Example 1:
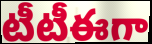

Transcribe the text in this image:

టీటీఈగా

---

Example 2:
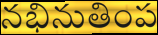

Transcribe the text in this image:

నభినుతింప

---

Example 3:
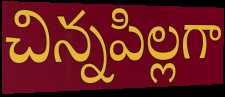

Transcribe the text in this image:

చిన్నపిల్లగా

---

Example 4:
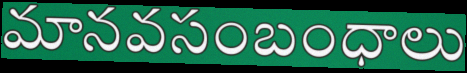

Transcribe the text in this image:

మానవసంబంధాలు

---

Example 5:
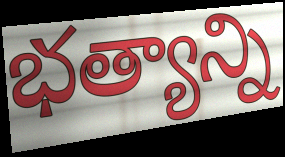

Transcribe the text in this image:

భత్యాన్ని